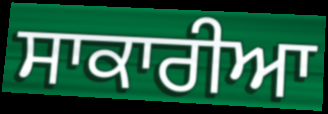
ਸਾਕਾਰੀਆ